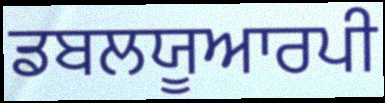
ਡਬਲਯੂਆਰਪੀ